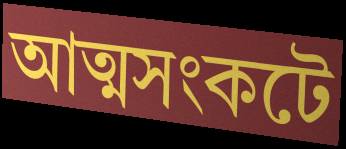
আত্মসংকটে